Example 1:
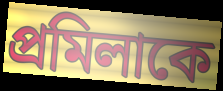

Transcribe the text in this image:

প্রমিলাকে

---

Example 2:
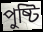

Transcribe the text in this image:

পুষ্টি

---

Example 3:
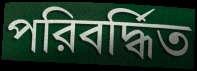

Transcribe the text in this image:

পরিবর্দ্ধিত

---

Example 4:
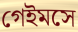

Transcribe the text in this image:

গেইমসে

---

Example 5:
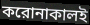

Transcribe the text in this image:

করোনাকালই